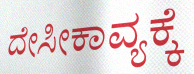
ದೇಸೀಕಾವ್ಯಕ್ಕೆ